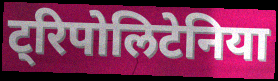
ट्रिपोलिटेनिया